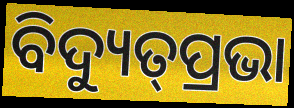
ବିଦ୍ୟୁତ୍‌ପ୍ରଭା